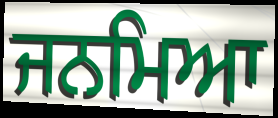
ਜਨਮਿਆ